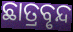
ଛାତ୍ରବୃନ୍ଦ